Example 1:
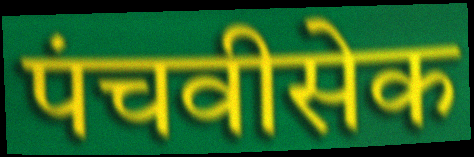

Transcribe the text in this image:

पंचवीसेक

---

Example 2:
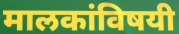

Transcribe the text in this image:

मालकांविषयी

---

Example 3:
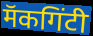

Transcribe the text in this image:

मॅकगिंटी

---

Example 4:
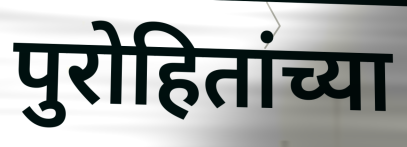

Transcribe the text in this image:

पुरोहितांच्या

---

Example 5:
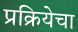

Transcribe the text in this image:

प्रक्रियेचा